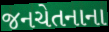
જનચેતનાના